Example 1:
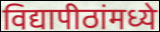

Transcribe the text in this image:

विद्यापीठांमध्ये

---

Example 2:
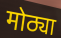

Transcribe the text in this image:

मोठ्या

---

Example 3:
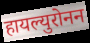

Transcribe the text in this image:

हायल्युरोनन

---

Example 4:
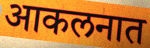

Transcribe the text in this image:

आकलनात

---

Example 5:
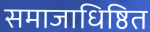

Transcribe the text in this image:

समाजाधिष्ठित